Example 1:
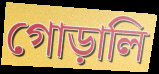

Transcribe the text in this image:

গোড়ালি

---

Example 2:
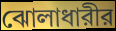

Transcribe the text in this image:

ঝোলাধারীর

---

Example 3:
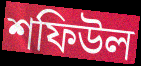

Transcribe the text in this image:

শফিউল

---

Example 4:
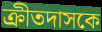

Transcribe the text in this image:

ক্রীতদাসকে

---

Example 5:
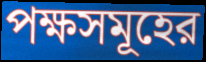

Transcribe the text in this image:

পক্ষসমূহের